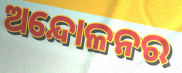
ଅନ୍ଦୋଳନର